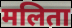
मलिता